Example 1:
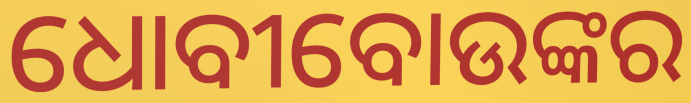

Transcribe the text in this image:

ଧୋବୀବୋଉଙ୍କର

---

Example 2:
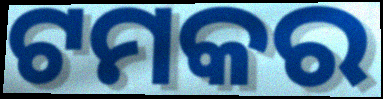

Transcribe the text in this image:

ଟମକର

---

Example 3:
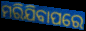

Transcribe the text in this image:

ମରିଯିବାପରେ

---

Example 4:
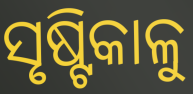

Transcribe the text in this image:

ସୃଷ୍ଟିକାଳୁ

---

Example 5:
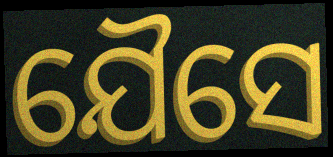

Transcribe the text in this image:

ଯୈସେ